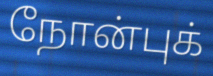
நோன்புக்